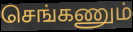
செங்கணும்